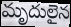
మృదులైన